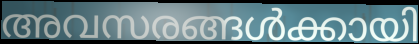
അവസരങ്ങൾക്കായി